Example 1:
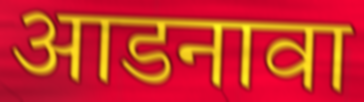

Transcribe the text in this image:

आडनावा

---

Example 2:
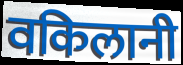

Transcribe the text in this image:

वकिलानी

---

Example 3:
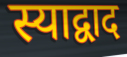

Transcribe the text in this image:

स्याद्वाद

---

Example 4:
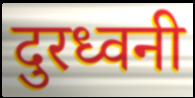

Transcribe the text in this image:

दुरध्वनी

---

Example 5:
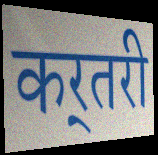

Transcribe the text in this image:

कर्तरी